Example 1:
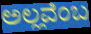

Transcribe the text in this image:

ಅಲ್ಲವೆಂಬ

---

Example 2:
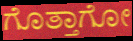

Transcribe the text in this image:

ಗೊತ್ತಾಗೋ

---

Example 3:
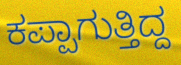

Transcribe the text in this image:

ಕಪ್ಪಾಗುತ್ತಿದ್ದ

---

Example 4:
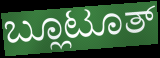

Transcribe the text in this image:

ಬ್ಲೂಟೂತ್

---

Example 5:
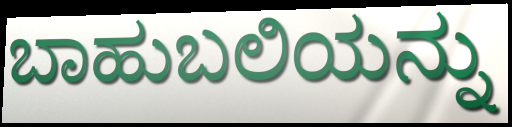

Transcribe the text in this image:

ಬಾಹುಬಲಿಯನ್ನು